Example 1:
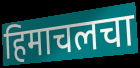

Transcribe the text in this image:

हिमाचलचा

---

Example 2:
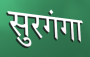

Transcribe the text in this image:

सुरगंगा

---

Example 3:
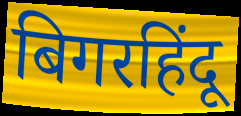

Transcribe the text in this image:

बिगरहिंदू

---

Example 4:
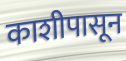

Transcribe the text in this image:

काशीपासून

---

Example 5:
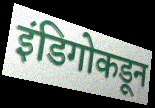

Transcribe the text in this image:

इंडिगोकडून